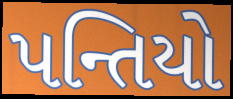
પન્તિયો